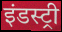
इंडस्‍ट्री